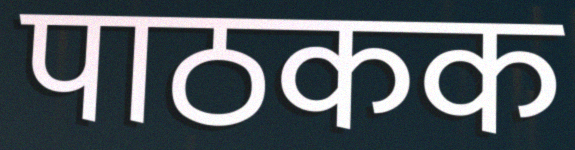
पाठकक